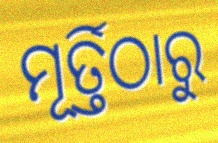
ମୂର୍ତ୍ତିଠାରୁ